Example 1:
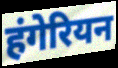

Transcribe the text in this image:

हंगेरियन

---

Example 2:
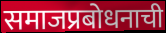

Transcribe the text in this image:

समाजप्रबोधनाची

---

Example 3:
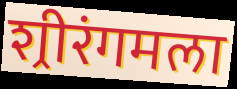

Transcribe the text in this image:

श्रीरंगमला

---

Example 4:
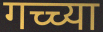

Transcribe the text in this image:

गच्च्या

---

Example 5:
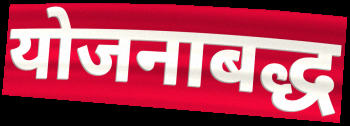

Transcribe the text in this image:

योजनाबद्ध